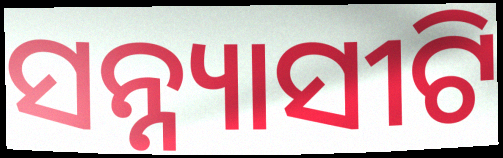
ସନ୍ନ୍ୟାସୀଟି